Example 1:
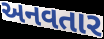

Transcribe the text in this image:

અનવતાર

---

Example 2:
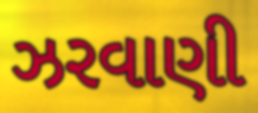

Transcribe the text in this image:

ઝરવાણી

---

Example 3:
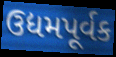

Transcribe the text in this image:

ઉદ્યમપૂર્વક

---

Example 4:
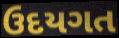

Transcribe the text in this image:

ઉદયગત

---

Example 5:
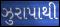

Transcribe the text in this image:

ઝુરાપાથી